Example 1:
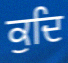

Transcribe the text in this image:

ਕੁਦਿ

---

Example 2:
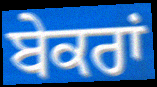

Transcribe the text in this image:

ਬੇਕਰਾਂ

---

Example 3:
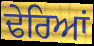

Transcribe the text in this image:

ਢੇਰਿਆਂ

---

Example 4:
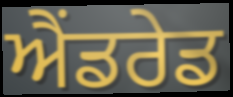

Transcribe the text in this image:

ਐਂਡਰੇਡ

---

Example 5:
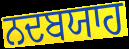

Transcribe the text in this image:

ਨਦਬਯਾਹ